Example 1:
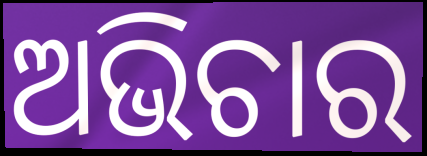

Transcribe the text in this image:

ଅଭିଚାର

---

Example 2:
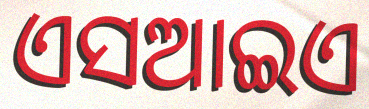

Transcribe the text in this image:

ଏସଆଇଏ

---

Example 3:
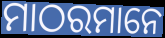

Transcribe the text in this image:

ମାଠରମାନେ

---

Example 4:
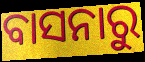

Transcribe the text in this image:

ବାସନାରୁ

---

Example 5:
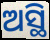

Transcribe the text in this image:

ଅସ୍ଥି